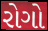
રોગો